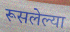
रूसलेल्या